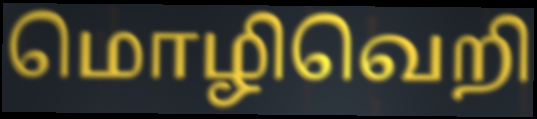
மொழிவெறி